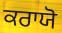
ਕਰਾਯੋ